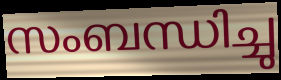
സംബന്ധിച്ചു